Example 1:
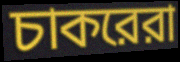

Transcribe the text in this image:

চাকরেরা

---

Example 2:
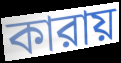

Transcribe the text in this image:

কারায়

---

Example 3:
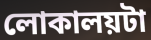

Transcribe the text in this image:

লোকালয়টা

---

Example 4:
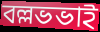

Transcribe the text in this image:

বল্লভভাই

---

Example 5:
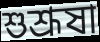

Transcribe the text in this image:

শুশ্রূষা